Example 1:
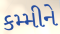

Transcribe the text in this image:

કમ્મીને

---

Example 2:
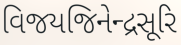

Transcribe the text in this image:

વિજયજિનેન્દ્રસૂરિ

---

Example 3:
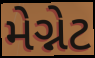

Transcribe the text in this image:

મેગ્નેટ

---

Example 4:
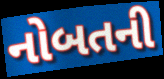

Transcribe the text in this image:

નોબતની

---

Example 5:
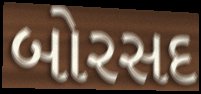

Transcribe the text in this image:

બોરસદ